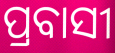
ପ୍ରବାସୀ